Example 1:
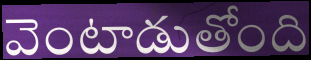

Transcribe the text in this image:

వెంటాడుతోంది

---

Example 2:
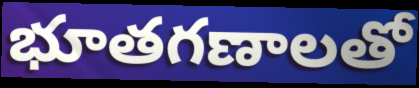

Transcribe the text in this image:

భూతగణాలతో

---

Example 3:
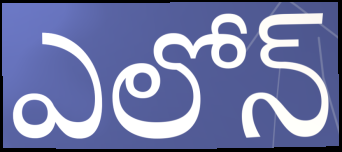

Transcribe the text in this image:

ఎలోన్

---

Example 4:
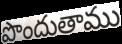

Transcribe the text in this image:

పొందుతాము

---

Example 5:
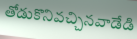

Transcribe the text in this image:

తోడుకొనివచ్చినవాడేడి